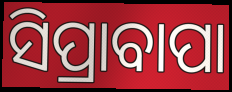
ସିପ୍ରାବାପା